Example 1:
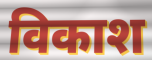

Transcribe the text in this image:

विकाश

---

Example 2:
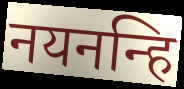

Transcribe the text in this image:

नयनन्हि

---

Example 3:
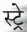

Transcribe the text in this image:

स्ट्रे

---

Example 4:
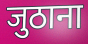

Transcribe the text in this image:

जुठाना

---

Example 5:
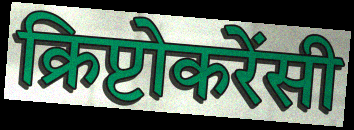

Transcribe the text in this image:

क्रिप्टोकरेंसी